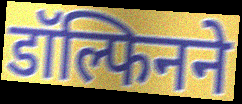
डॉल्फिनने